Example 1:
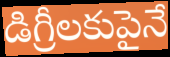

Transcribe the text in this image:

డిగ్రీలకుపైనే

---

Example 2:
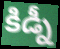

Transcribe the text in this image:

కిడ్నీ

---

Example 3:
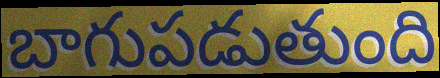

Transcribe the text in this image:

బాగుపడుతుంది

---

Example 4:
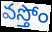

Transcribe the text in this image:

వస్తోం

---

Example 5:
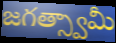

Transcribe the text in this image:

జగత్స్వామీ